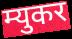
म्युकर